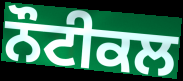
ਨੌਟੀਕਲ